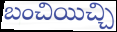
బంచియిచ్చి